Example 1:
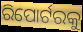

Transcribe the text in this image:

ରିପୋର୍ଟରକୁ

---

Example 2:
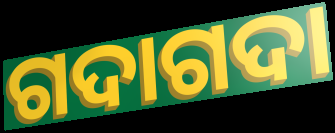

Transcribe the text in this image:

ଗଦାଗଦା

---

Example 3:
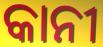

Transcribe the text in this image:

କାନୀ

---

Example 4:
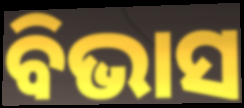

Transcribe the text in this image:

ବିଭାସ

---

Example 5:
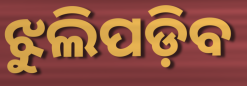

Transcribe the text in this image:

ଝୁଲିପଡ଼ିବ